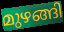
മുഴങ്ങി